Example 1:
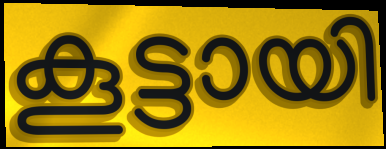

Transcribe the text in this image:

കൂട്ടായി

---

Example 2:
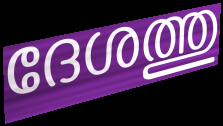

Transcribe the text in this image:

ദേശത്തു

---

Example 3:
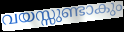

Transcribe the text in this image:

വയസ്സുണ്ടാകും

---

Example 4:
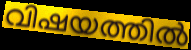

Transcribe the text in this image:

വിഷയത്തിൽ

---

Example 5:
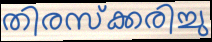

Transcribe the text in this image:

തിരസ്ക്കരിച്ചു